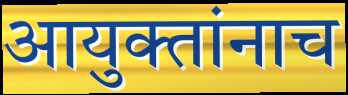
आयुक्तांनाच